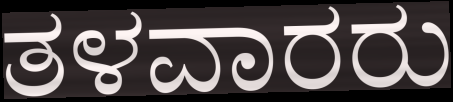
ತಳವಾರರು